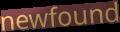
newfound